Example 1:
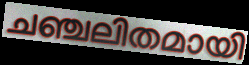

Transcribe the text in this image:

ചഞ്ചലിതമായി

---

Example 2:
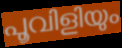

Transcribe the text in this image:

പൂവിളിയും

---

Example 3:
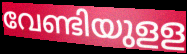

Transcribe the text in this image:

വേണ്ടിയുളള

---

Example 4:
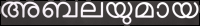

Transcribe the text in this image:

അബലയുമായ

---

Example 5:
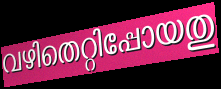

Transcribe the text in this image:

വഴിതെറ്റിപ്പോയതു